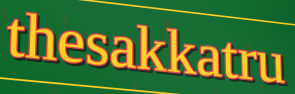
thesakkatru